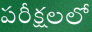
పరీక్షలలో